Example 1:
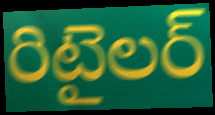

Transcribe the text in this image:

రిటైలర్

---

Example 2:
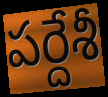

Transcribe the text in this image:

పర్దేశీ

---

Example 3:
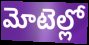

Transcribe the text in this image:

మోటెల్లో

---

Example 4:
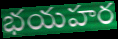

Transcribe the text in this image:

భయహర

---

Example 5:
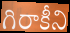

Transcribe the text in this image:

గిరాకీని